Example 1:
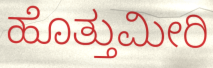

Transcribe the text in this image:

ಹೊತ್ತುಮೀರಿ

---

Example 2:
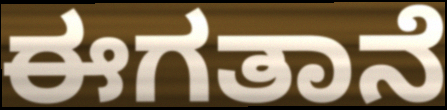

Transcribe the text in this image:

ಈಗತಾನೆ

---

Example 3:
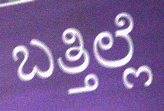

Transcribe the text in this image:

ಬತ್ತಿಲ್ಲೆ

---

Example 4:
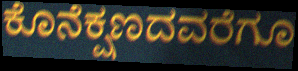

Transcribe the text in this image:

ಕೊನೆಕ್ಷಣದವರೆಗೂ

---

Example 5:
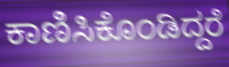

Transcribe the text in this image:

ಕಾಣಿಸಿಕೊಂಡಿದ್ದರೆ